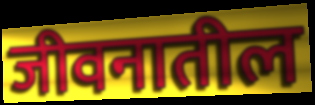
जीवनातील